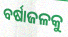
ବର୍ଷାଜଳକୁ